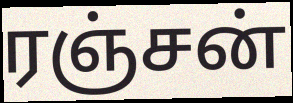
ரஞ்சன்